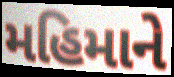
મહિમાને